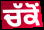
ਚੱਕੋਂ